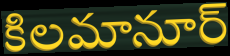
కిలమానూర్